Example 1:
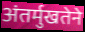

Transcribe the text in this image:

अंतर्मुखतेने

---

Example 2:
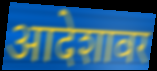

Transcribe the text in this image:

आदेशावर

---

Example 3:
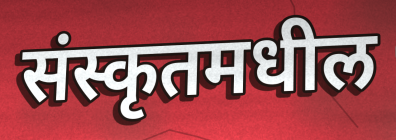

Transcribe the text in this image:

संस्कृतमधील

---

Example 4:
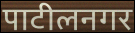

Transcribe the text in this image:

पाटीलनगर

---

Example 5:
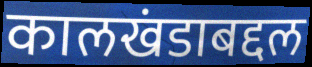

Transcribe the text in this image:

कालखंडाबद्दल